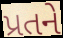
પ્રતને